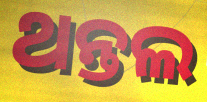
ଥନ୍ତଲ